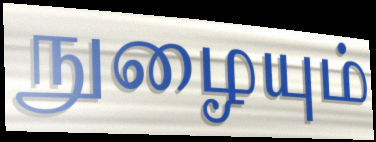
நுழையும்